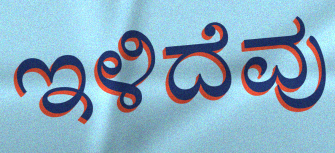
ಇಳಿದೆವು